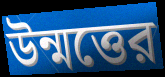
উন্মত্তের